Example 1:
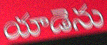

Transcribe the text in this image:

యాడెను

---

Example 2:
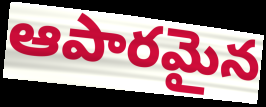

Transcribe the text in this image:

ఆపారమైన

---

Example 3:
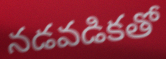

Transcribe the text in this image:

నడవడికతో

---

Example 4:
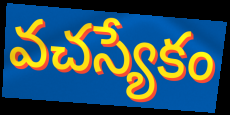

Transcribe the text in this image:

వచస్యేకం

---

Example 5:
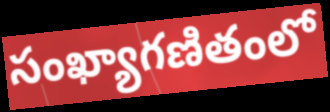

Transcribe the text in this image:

సంఖ్యాగణితంలో